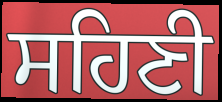
ਸਹਿਣੀ